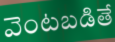
వెంటబడితే